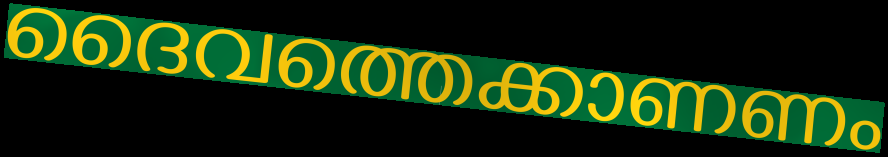
ദൈവത്തെക്കാണണം